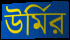
উর্মির